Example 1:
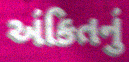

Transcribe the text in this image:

અંકિતનું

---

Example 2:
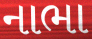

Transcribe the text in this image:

નાભા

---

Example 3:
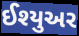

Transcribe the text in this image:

ઈશ્યુઅર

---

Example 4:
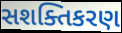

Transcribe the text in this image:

સશક્તિકરણ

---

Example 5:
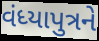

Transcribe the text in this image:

વંધ્યાપુત્રને